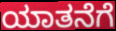
ಯಾತನೆಗೆ